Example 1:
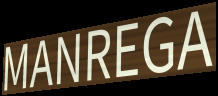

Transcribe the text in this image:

MANREGA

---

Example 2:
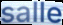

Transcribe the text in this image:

salle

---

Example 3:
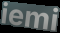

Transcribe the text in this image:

iemi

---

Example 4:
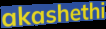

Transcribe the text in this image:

akashethi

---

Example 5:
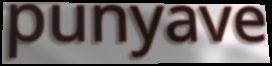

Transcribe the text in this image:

punyave